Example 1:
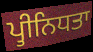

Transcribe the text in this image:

ਪ੍ਤੀਨਿਧਤਾ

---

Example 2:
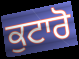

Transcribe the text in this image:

ਕੁਟਾਰੋ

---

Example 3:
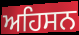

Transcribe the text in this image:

ਅਹਿਸਨ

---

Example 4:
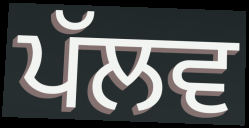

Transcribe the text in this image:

ਪੱਲਵ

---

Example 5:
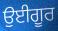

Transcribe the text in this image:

ਉਈਗੂਰ